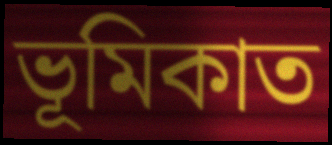
ভূমিকাত